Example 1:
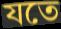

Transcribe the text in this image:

যতে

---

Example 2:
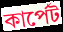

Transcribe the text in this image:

কাৰ্পেট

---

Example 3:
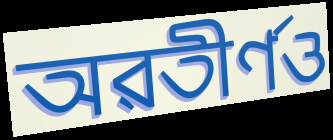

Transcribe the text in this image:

অৱতীৰ্ণও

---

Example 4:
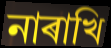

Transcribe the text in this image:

নাৰাখি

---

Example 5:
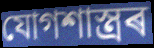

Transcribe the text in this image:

যোগশাস্ত্ৰৰ